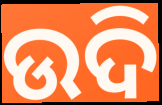
ଉଦି